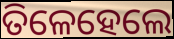
ତିଳେହେଲେ